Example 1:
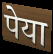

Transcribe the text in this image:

पेया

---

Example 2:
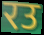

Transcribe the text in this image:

रउ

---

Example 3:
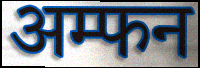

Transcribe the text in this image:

अम्फन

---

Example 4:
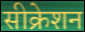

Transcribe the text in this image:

सीक्रेशन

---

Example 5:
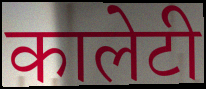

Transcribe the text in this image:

कालेटी